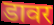
डावर